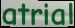
atrial